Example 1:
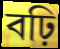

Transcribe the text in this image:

বঢ়ি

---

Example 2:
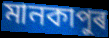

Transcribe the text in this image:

মানকাপুৰ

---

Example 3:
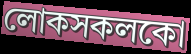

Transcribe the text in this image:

লোকসকলকো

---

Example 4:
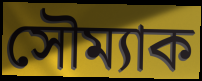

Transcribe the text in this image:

সৌম্যাক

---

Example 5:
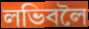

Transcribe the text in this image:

লভিবলৈ